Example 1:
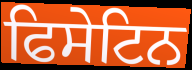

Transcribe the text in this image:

ਫਿਸੇਟਿਨ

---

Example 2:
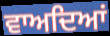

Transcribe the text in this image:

ਵਾਅਦਿਆਂ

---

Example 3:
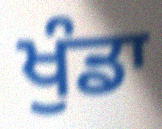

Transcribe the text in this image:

ਖੁੰਡਾ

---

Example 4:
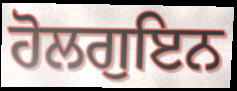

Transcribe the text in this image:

ਹੋਲਗੁਇਨ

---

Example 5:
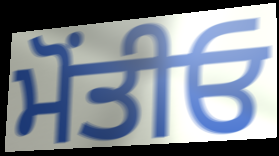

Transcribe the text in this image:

ਮੋਂਤੀਓ